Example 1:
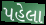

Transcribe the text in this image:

પહેલા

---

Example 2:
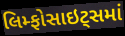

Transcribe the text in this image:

લિમ્ફોસાઇટ્સમાં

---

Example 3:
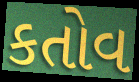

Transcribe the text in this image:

કતોવ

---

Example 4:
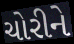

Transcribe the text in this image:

ચોરીને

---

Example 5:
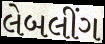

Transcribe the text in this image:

લેબલીંગ